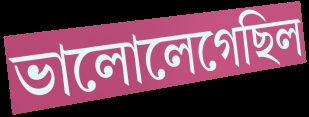
ভালোলেগেছিল